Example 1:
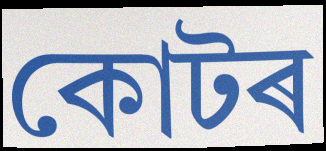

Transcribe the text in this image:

কোটৰ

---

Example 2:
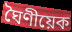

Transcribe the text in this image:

ঘৈণীয়েক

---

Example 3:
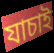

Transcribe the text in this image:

যাচাই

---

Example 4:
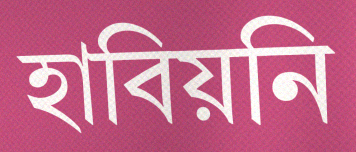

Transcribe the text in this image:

হাবিয়নি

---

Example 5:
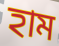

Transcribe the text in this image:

হাম